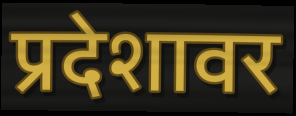
प्रदेशावर